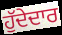
ਹੁੱਦੇਦਾਰ